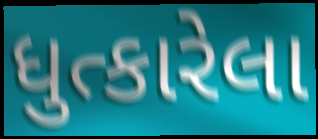
ધુત્કારેલા